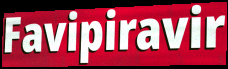
Favipiravir